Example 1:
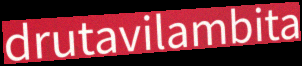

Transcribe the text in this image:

drutavilambita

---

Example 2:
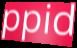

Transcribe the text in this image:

ppid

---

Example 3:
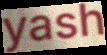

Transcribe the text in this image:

yash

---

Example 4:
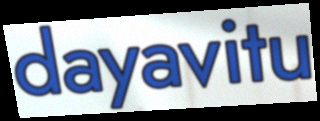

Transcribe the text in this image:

dayavitu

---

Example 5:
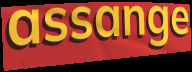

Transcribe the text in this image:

assange